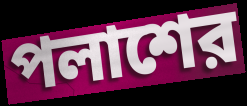
পলাশের